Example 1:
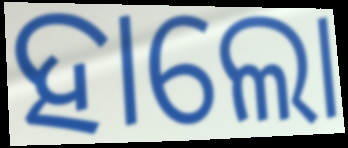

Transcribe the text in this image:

ହାଲୋ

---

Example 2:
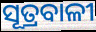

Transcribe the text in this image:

ସୂତ୍ରବାଳୀ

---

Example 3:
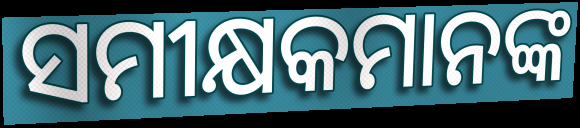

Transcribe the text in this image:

ସମୀକ୍ଷକମାନଙ୍କ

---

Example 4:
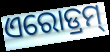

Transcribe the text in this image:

ଏରୋଡ୍ରମ୍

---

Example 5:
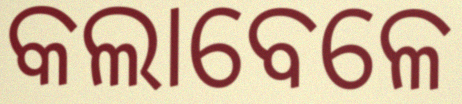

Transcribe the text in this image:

କଲାବେଳେ